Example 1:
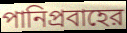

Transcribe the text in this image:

পানিপ্রবাহের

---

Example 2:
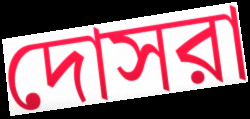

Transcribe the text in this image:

দোসরা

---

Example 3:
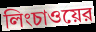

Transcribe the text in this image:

লিংচাওয়ের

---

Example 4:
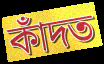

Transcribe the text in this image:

কাঁদত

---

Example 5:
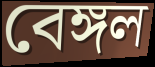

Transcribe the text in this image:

বেঙ্গল